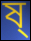
ষ্